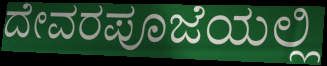
ದೇವರಪೂಜೆಯಲ್ಲಿ